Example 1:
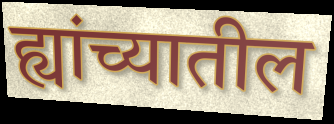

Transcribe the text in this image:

ह्यांच्यातील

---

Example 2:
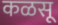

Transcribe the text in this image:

कळसू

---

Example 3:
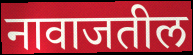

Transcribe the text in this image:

नावाजतील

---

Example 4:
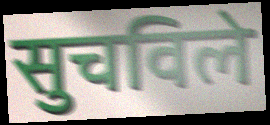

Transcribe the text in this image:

सुचविले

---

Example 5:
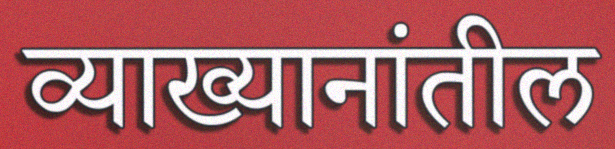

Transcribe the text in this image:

व्याख्यानांतील